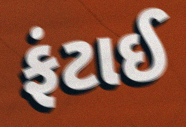
ફંટાઈ